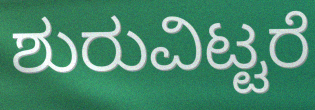
ಶುರುವಿಟ್ಟರೆ